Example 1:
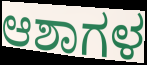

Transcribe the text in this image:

ಆಶಾಗಳ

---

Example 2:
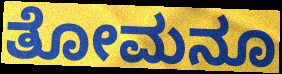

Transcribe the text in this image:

ತೋಮನೂ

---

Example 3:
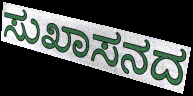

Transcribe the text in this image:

ಸುಖಾಸನದ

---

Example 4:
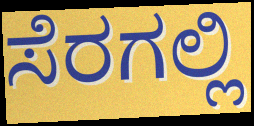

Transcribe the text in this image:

ಸೆರಗಲ್ಲಿ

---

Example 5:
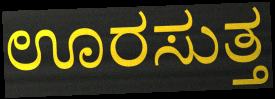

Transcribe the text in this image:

ಊರಸುತ್ತ